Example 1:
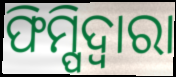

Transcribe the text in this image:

ଫିମ୍ପିଦ୍ଵାରା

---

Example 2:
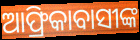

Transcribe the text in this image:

ଆଫ୍ରିକାବାସୀଙ୍କ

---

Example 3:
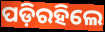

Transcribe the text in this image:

ପଡ଼ିରହିଲେ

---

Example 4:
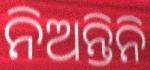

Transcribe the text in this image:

ନିଅନ୍ତିନି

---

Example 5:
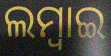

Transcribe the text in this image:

ଲମ୍ବାଇ